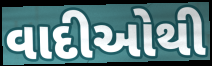
વાદીઓથી